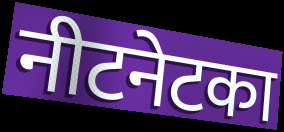
नीटनेटका